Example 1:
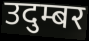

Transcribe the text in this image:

उदुम्बर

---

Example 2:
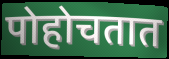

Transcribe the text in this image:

पोहोचतात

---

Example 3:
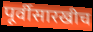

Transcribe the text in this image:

पूर्वीसारखीच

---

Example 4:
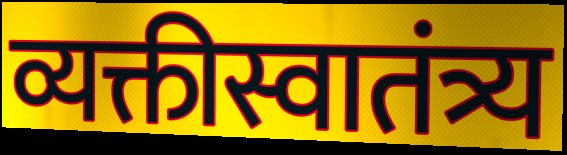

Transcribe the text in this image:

व्यक्तीस्वातंत्र्य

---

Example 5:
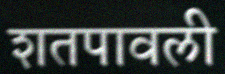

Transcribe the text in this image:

शतपावली